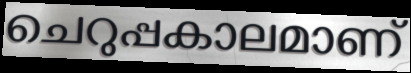
ചെറുപ്പകാലമാണ്